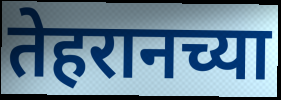
तेहरानच्या